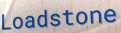
Loadstone